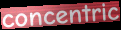
concentric